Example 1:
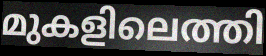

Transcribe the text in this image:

മുകളിലെത്തി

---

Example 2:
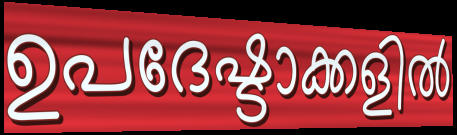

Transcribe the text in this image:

ഉപദേഷ്ടാക്കളിൽ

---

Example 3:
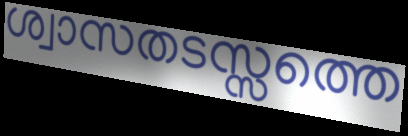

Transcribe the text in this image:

ശ്വാസതടസ്സത്തെ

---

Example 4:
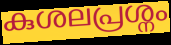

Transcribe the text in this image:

കുശലപ്രശ്നം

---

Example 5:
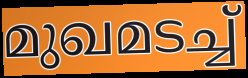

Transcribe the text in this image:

മുഖമടച്ച്